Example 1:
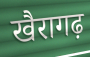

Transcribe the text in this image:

खैरागढ़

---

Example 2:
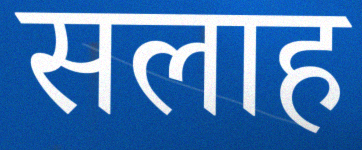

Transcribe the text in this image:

सलाह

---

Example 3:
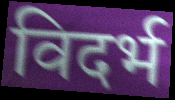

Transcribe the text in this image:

विदर्भ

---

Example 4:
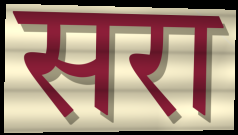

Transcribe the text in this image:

सरा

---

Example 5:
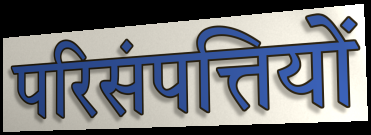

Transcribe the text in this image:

परिसंपत्तियों